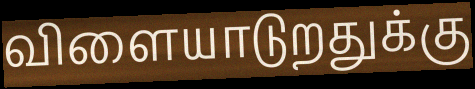
விளையாடுறதுக்கு